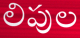
లిపుల